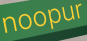
noopur